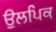
ਉਲਪਿਕ